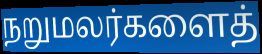
நறுமலர்களைத்